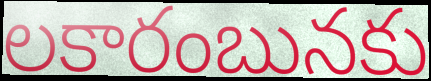
లకారంబునకు